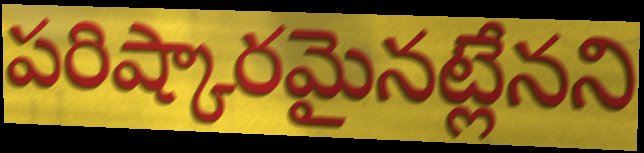
పరిష్కారమైనట్లేనని